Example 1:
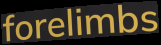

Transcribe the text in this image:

forelimbs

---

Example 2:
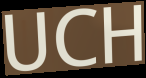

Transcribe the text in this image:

UCH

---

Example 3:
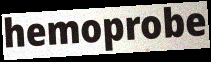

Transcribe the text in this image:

hemoprobe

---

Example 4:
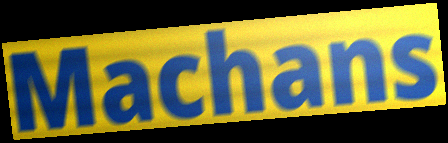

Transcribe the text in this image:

Machans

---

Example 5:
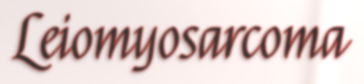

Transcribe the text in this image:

Leiomyosarcoma